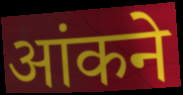
आंकने